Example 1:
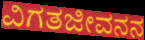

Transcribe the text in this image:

ವಿಗತಜೀವನನ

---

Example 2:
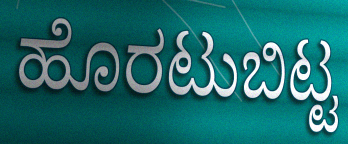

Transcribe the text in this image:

ಹೊರಟುಬಿಟ್ಟ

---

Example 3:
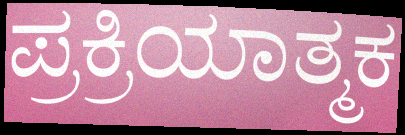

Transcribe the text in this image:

ಪ್ರಕ್ರಿಯಾತ್ಮಕ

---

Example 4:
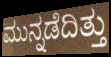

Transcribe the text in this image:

ಮುನ್ನಡೆದಿತ್ತು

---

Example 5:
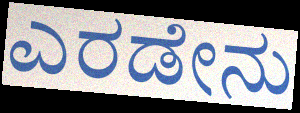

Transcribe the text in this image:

ಎರಡೇನು